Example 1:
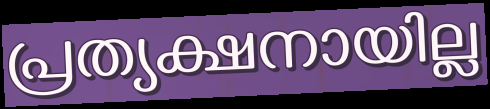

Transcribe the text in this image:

പ്രത്യക്ഷനായില്ല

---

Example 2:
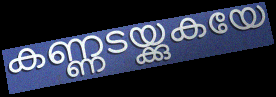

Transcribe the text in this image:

കണ്ണടയ്ക്കുകയേ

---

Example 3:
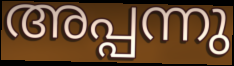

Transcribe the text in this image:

അപ്പന്നു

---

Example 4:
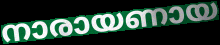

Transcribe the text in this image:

നാരായണായ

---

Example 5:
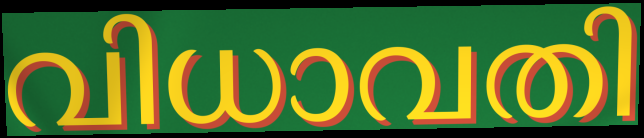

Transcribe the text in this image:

വിധാവതി